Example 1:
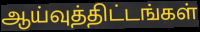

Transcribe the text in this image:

ஆய்வுத்திட்டங்கள்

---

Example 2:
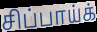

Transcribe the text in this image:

சிப்பாய்க்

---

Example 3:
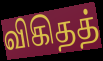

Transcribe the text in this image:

விகிதத்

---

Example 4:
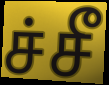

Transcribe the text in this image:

ச்சீ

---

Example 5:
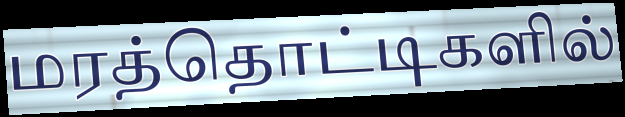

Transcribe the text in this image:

மரத்தொட்டிகளில்